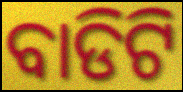
ବାଡିଟି